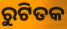
ରୁଟିତକ